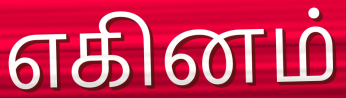
எகினம்